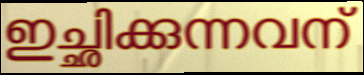
ഇച്ഛിക്കുന്നവന്